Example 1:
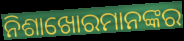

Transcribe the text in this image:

ନିଶାଖୋରମାନଙ୍କର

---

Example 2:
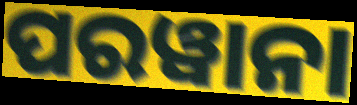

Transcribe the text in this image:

ପରୱାନା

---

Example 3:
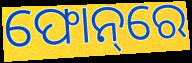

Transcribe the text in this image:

ଫୋନ୍‌ରେ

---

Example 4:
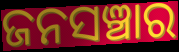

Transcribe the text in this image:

ଜନସଞ୍ଚାର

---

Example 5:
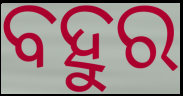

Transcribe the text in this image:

ବହୁର